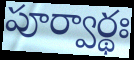
పూర్వార్థః